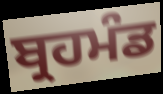
ਬ੍ਰਹਮੰਡ